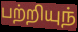
பற்றியுந்